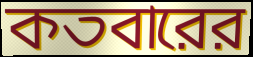
কতবারের